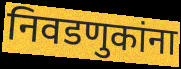
निवडणुकांना